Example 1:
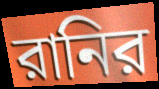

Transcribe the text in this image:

রানির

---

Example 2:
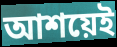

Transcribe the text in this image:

আশয়েই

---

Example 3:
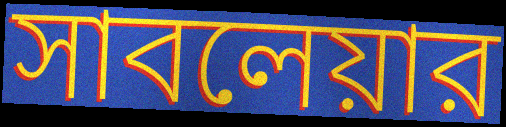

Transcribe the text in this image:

সাবলেয়ার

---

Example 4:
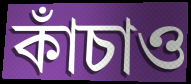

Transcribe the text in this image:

কাঁচাও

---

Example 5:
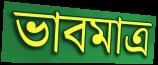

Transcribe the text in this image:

ভাবমাত্র